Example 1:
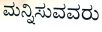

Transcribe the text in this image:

ಮನ್ನಿಸುವವರು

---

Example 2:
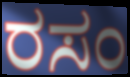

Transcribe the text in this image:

ರಸಂ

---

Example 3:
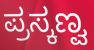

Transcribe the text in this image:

ಪ್ರಸ್ಕಣ್ವ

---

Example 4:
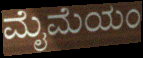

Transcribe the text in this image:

ಮೈಮೆಯಂ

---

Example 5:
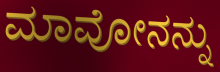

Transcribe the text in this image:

ಮಾವೋನನ್ನು